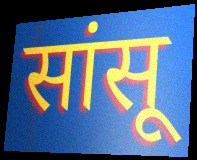
सांसू